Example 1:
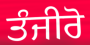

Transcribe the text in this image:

ਤੰਜੀਰੋ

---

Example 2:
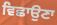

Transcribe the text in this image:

ਵਿਛਾਉਣਾ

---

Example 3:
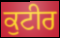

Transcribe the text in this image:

ਕੁਟੀਰ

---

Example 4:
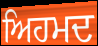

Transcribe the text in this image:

ਅਿਹਮਦ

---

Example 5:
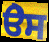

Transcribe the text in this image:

ੳੇਸ